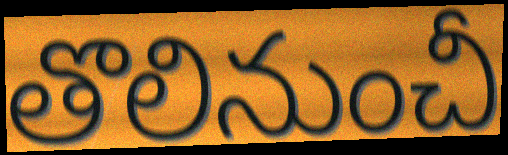
తొలినుంచీ